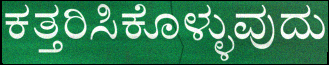
ಕತ್ತರಿಸಿಕೊಳ್ಳುವುದು